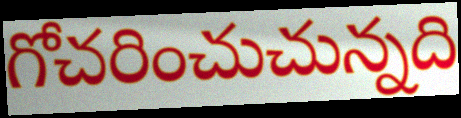
గోచరించుచున్నది